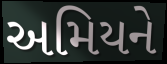
અમિયને